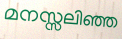
മനസ്സലിഞ്ഞ